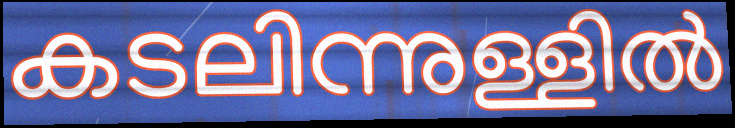
കടലിന്നുള്ളിൽ